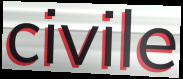
civile